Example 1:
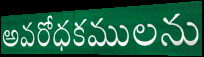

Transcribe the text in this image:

అవరోధకములను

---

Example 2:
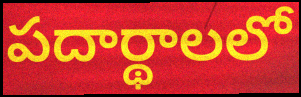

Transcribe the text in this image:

పదార్థాలలో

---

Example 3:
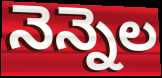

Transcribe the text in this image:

నెన్నెల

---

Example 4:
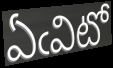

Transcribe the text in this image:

ఏఁవిటో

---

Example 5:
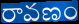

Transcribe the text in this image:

రావణం